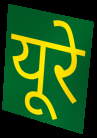
यूरे